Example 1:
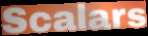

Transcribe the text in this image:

Scalars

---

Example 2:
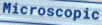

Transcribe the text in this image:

Microscopic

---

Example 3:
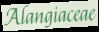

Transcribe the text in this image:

Alangiaceae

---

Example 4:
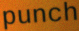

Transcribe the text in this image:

punch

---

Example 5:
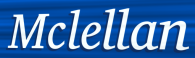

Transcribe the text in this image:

Mclellan